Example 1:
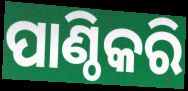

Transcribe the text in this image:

ପାଣ୍ଠିକରି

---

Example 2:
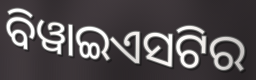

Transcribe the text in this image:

ବିୱାଇଏସଟିର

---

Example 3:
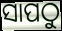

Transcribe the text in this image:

ସାପଠୁ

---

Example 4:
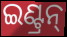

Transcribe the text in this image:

ଇଣ୍ଟ୍ରନ୍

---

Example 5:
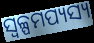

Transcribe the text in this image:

ସ୍ୱଳ୍ପମପ୍ୟସ୍ୟ